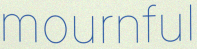
mournful